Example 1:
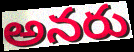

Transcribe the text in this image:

అనరు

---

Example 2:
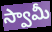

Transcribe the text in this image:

స్వామీ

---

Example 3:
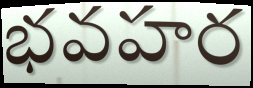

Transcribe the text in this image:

భవహర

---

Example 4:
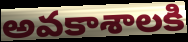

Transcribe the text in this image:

అవకాశాలకి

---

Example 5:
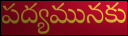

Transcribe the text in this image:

పద్యమునకు